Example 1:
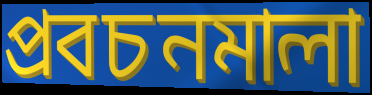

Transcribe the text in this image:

প্রবচনমালা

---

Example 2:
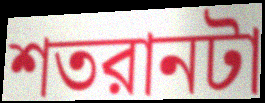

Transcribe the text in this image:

শতরানটা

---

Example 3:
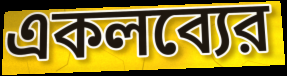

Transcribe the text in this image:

একলব্যের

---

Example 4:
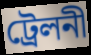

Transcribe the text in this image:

ট্রেলনী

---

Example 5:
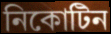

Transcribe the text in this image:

নিকোটিন